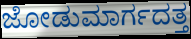
ಜೋಡುಮಾರ್ಗದತ್ತ